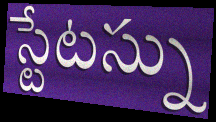
స్టేటస్ను